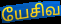
யேசிவ